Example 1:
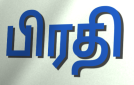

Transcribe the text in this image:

பிரதி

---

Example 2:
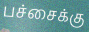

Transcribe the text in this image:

பச்சைக்கு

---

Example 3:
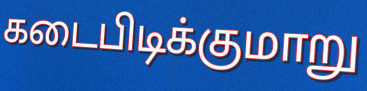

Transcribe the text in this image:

கடைபிடிக்குமாறு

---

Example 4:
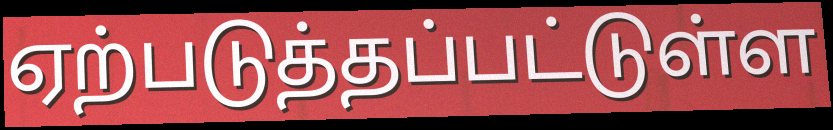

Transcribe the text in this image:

ஏற்படுத்தப்பட்டுள்ள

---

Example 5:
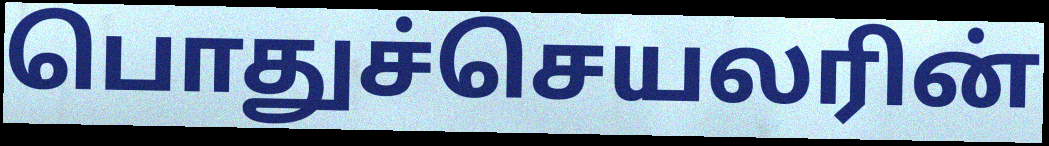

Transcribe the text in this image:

பொதுச்செயலரின்